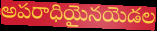
అపరాధియైనయెడల